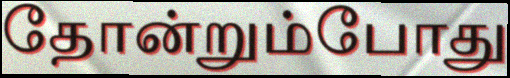
தோன்றும்போது